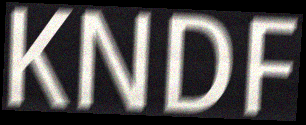
KNDF